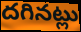
దగినట్లు